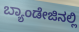
ಬ್ಯಾಂಡೇಜಿನಲ್ಲಿ